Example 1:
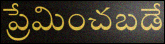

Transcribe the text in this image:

ప్రేమించబడే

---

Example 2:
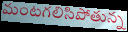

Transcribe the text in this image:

మంటగలిసిపోతున్న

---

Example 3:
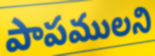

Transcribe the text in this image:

పాపములని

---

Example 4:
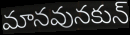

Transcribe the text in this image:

మానవునకున్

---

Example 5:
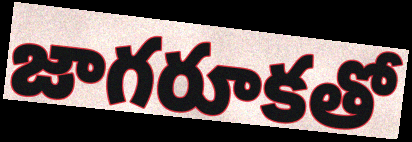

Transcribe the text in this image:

జాగరూకతో